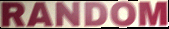
RANDOM